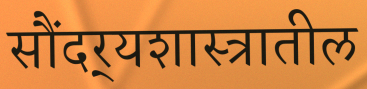
सौंदर्यशास्त्रातील